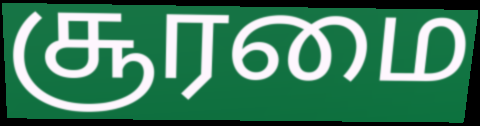
சூரமை